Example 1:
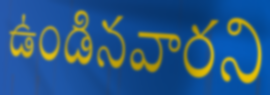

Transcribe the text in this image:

ఉండినవారని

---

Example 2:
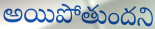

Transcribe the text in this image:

అయిపోతుందని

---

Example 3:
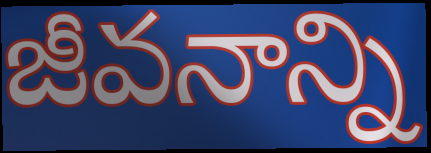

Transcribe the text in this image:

జీవనాన్ని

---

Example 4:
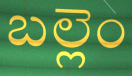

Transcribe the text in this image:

బల్లెం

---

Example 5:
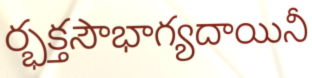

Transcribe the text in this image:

ర్భక్తసౌభాగ్యదాయినీ